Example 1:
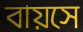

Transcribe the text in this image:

বায়সে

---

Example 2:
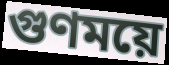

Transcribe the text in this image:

গুণময়ে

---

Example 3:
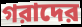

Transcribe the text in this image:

গরাদের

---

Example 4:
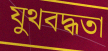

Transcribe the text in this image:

যুথবদ্ধতা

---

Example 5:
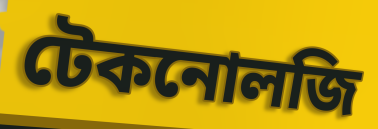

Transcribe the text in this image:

টেকনোলজি